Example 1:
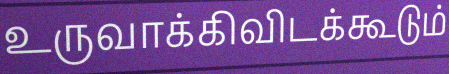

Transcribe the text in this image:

உருவாக்கிவிடக்கூடும்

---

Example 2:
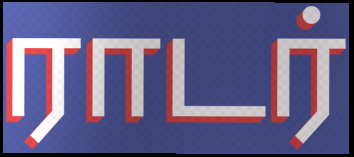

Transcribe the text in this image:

ராடர்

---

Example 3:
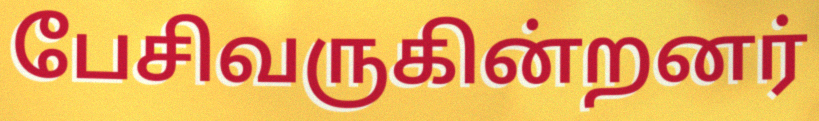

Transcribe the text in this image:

பேசிவருகின்றனர்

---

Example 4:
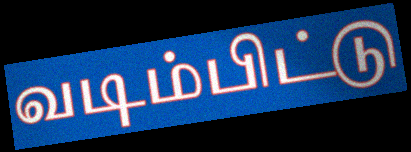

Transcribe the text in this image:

வடிம்பிட்டு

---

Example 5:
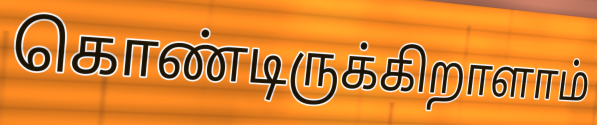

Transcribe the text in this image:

கொண்டிருக்கிறாளாம்